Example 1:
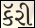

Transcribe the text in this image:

કૅરી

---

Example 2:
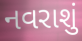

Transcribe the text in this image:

નવરાશું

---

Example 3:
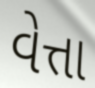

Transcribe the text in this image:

વેત્તા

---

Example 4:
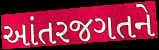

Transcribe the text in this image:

આંતરજગતને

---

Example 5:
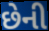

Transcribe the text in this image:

છેની